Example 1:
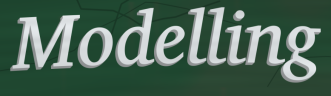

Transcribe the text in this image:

Modelling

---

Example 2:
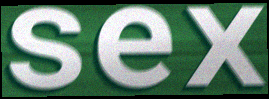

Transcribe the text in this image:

sex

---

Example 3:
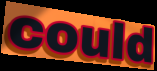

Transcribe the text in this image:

could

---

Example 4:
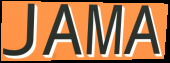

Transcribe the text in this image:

JAMA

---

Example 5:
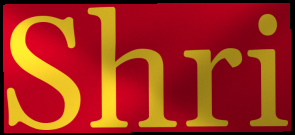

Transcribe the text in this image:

Shri